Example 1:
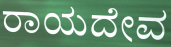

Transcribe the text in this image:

ರಾಯದೇವ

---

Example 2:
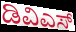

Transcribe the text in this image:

ಡಿವಿಎಸ್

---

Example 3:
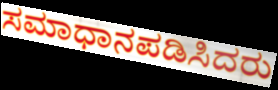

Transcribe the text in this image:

ಸಮಾಧಾನಪಡಿಸಿದರು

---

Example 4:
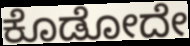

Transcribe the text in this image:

ಕೊಡೋದೇ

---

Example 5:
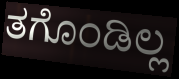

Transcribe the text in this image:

ತಗೊಂಡಿಲ್ಲ